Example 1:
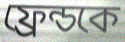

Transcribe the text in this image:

ফ্রেন্ডকে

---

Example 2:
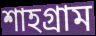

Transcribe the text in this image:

শাহগ্রাম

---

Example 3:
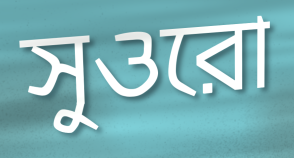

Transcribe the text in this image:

সুওরো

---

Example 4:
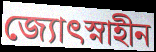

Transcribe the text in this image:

জ্যোৎস্নাহীন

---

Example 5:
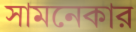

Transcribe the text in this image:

সামনেকার